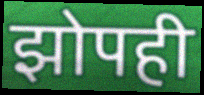
झोपही